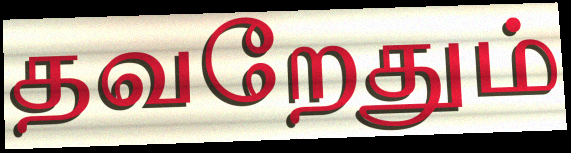
தவறேதும்